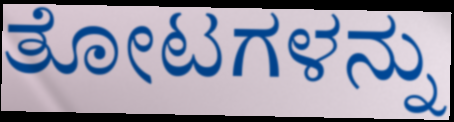
ತೋಟಗಳನ್ನು